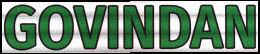
GOVINDAN